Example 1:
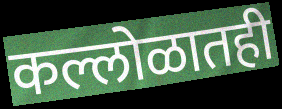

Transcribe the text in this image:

कल्लोळातही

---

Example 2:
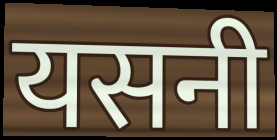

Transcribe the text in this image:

यसनी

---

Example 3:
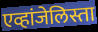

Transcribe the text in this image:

एव्हांजेलिस्ता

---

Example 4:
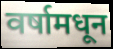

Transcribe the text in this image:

वर्षामधून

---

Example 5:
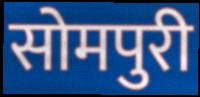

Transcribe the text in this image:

सोमपुरी